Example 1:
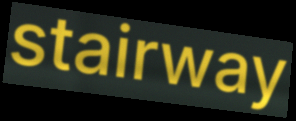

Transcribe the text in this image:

stairway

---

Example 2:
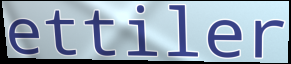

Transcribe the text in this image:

ettiler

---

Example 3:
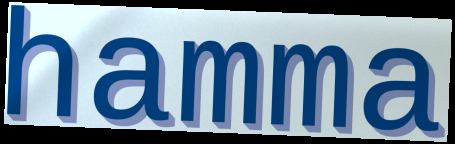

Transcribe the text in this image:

hamma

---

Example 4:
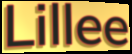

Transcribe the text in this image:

Lillee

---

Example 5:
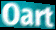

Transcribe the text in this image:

Oart